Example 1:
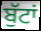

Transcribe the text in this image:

ਬੁੱਟਾਂ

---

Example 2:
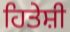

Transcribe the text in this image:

ਹਿਤੇਸ਼ੀ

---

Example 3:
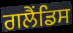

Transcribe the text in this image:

ਗਲੈਂਡਿਸ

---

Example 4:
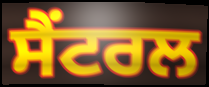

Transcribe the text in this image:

ਸੈਂਟਰਲ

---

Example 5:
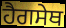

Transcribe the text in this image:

ਹੈਗਸੇਥ